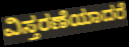
ವಿಸ್ತರಣೆಯಾದರೆ